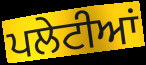
ਪਲੇਟੀਆਂ